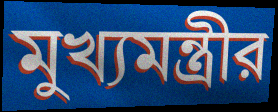
মুখ্যমন্ত্রীর